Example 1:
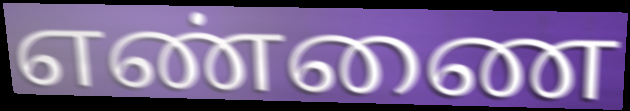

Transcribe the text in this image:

எண்ணை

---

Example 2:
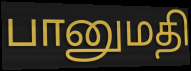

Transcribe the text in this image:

பானுமதி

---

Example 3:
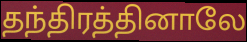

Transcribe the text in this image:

தந்திரத்தினாலே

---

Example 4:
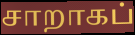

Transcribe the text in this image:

சாறாகப்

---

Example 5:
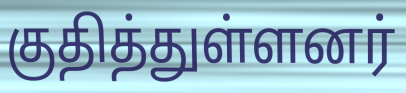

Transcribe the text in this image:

குதித்துள்ளனர்